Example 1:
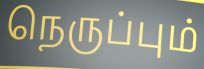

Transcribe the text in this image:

நெருப்பும்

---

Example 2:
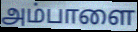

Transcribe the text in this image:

அம்பாளை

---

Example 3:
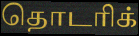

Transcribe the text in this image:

தொடரிக்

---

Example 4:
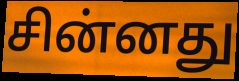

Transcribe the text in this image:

சின்னது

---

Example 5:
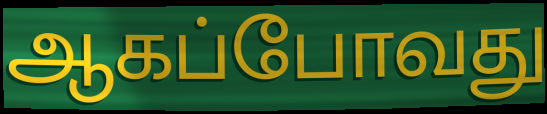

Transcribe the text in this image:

ஆகப்போவது